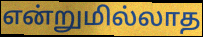
என்றுமில்லாத